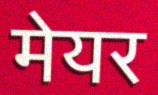
मेयर